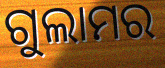
ଗୁଲାମର